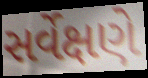
સર્વેક્ષણે